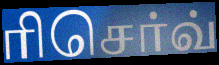
ரிசெர்வ்